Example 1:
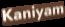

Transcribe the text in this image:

Kaniyam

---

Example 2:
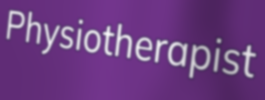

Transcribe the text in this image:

Physiotherapist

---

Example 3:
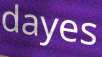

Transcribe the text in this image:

dayes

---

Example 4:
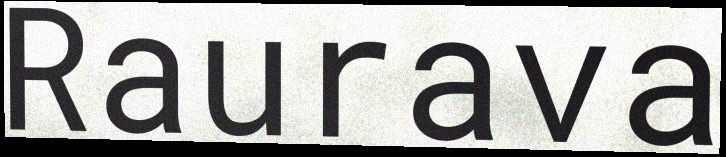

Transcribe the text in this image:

Raurava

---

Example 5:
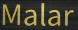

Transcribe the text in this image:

Malar